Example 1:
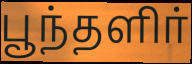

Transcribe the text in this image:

பூந்தளிர்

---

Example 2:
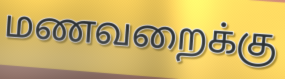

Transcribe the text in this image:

மணவறைக்கு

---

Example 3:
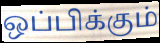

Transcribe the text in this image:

ஒப்பிக்கும்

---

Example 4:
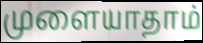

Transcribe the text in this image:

முளையாதாம்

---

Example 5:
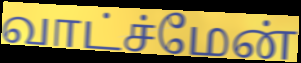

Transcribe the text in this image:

வாட்ச்மேன்